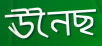
ঊনৈছ